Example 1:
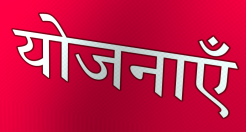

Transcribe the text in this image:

योजनाएँ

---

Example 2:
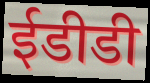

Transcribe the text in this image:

ईडीडी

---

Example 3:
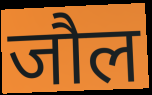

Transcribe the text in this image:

जौल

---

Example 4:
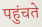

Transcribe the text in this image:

पहुंचते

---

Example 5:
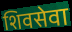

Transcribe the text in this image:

शिवसेवा